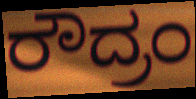
ರೌದ್ರಂ